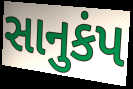
સાનુકંપ